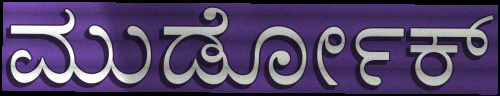
ಮುರ್ಡೋಕ್